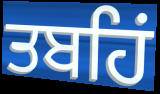
ਤਬਹਿਂ